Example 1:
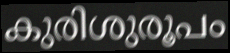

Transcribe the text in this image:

കുരിശുരൂപം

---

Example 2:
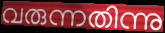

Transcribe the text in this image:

വരുന്നതിന്നു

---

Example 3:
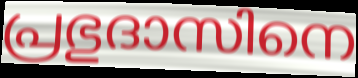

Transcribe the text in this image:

പ്രഭുദാസിനെ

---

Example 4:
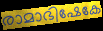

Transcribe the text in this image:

രാമാഭിഷേകേ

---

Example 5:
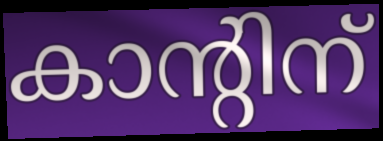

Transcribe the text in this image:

കാന്റിന്